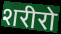
शरीरो